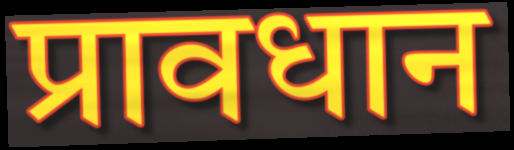
प्रावधान